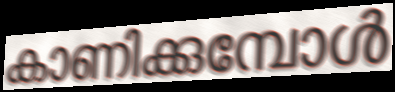
കാണിക്കുമ്പോൾ